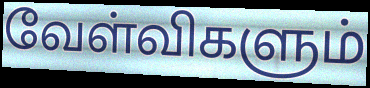
வேள்விகளும்